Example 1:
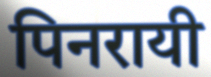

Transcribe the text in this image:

पिनरायी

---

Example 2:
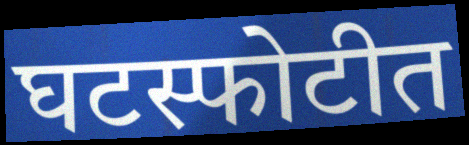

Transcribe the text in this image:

घटस्फोटीत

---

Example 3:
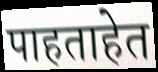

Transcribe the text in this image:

पाहताहेत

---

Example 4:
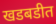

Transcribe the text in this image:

खडबडीत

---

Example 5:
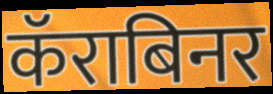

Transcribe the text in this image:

कॅराबिनर